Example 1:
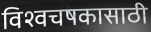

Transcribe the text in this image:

विश्वचषकासाठी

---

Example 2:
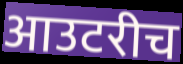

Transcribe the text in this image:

आउटरीच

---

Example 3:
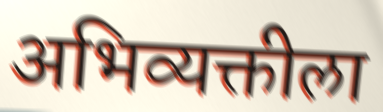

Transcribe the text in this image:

अभिव्यक्तीला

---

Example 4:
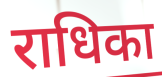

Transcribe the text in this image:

राधिका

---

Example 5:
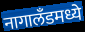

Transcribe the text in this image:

नागालॅंडमध्ये